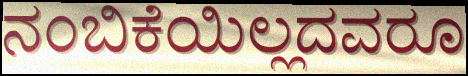
ನಂಬಿಕೆಯಿಲ್ಲದವರೂ